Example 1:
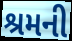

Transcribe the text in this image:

શ્રમની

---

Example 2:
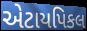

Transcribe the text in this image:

એટાયપિકલ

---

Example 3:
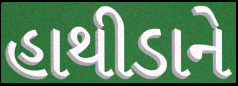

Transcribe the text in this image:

હાથીડાને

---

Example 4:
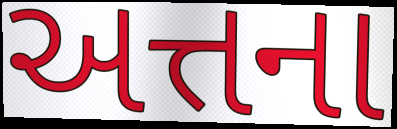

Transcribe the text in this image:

અત્તના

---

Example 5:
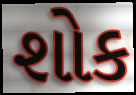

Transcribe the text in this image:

શોક